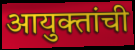
आयुक्तांची